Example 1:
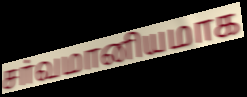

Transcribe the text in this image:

சர்வமானியமாக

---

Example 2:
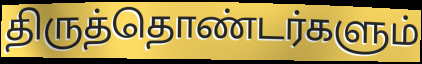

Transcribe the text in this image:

திருத்தொண்டர்களும்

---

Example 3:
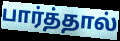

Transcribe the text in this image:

பார்த்தால்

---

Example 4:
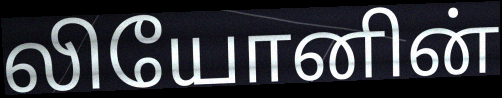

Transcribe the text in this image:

லியோனின்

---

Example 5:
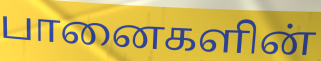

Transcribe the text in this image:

பானைகளின்